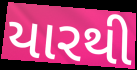
યારથી